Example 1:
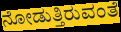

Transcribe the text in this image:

ನೋಡುತ್ತಿರುವಂತೆ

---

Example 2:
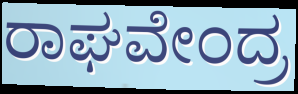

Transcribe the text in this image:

ರಾಘವೇಂದ್ರ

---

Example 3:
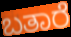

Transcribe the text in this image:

ಬತಾರೆ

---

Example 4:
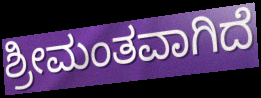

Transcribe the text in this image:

ಶ್ರೀಮಂತವಾಗಿದೆ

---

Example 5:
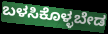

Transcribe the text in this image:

ಬಳಸಿಕೊಳ್ಳಬೇಡ